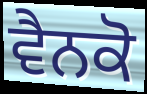
ਵੈਨਕੋ